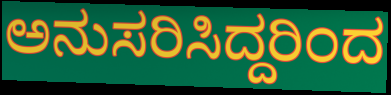
ಅನುಸರಿಸಿದ್ದರಿಂದ